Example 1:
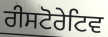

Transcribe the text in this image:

ਰੀਸਟੋਰੇਟਿਵ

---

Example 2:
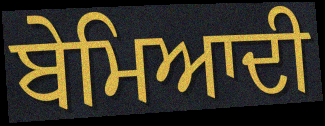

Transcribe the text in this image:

ਬੇਮਿਆਦੀ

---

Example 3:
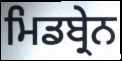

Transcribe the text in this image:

ਮਿਡਬ੍ਰੇਨ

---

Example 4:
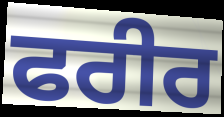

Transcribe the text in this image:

ਫਰੀਰ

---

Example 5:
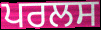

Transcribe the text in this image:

ਪਰਲਸ